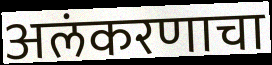
अलंकरणाचा